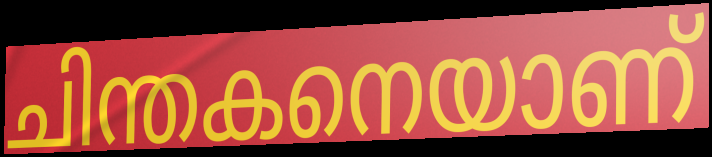
ചിന്തകനെയാണ്